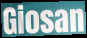
Giosan